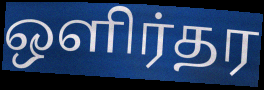
ஒளிர்தர